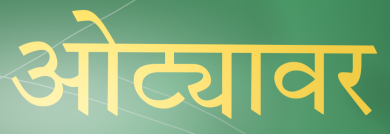
ओट्यावर